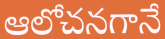
ఆలోచనగానే